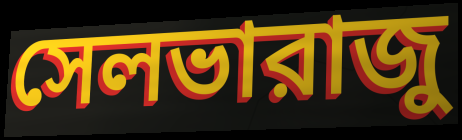
সেলভারাজু